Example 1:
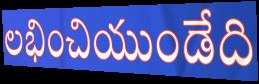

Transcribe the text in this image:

లభించియుండేది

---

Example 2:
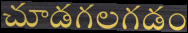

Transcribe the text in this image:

చూడగలగడం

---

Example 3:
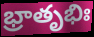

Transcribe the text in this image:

భ్రాతృభిః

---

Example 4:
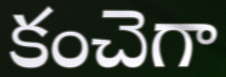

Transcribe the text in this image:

కంచెగా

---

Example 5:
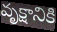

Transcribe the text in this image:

వృక్షానికి